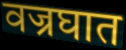
वज्रघात